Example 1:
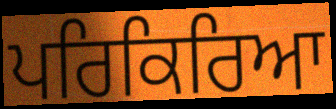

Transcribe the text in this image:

ਪਰਿਕਿਰਿਆ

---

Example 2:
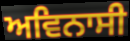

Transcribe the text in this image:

ਅਵਿਨਾਸੀ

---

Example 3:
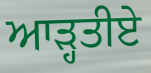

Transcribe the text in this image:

ਆੜ੍ਹਤੀਏ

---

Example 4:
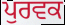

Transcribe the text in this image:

ਪੁਰਵਕ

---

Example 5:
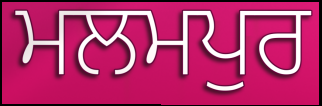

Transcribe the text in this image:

ਮਲਮਪੁਰ